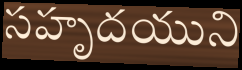
సహృదయుని